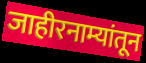
जाहीरनाम्यांतून